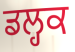
ਡਲ੍ਹਕ